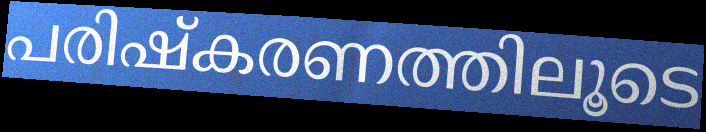
പരിഷ്കരണത്തിലൂടെ